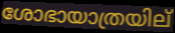
ശോഭായാത്രയില്